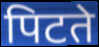
पिटते